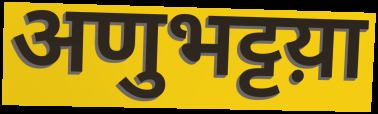
अणुभट्टय़ा